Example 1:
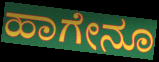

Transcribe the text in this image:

ಹಾಗೇನೂ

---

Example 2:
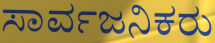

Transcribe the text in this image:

ಸಾರ್ವಜನಿಕರು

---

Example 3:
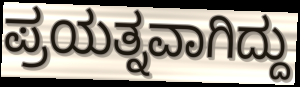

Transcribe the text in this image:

ಪ್ರಯತ್ನವಾಗಿದ್ದು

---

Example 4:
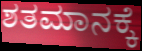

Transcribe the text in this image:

ಶತಮಾನಕ್ಕೆ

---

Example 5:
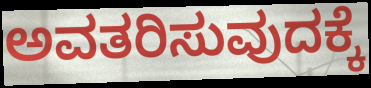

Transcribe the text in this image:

ಅವತರಿಸುವುದಕ್ಕೆ